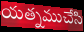
యత్నముచేసి